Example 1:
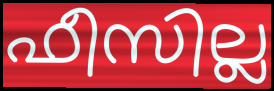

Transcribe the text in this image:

ഫീസില്ല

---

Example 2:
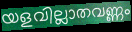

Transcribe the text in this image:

യളവില്ലാതവണ്ണം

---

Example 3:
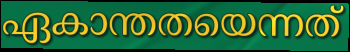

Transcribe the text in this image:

ഏകാന്തതയെന്നത്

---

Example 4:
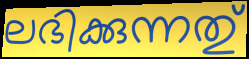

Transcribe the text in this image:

ലഭിക്കുന്നതു്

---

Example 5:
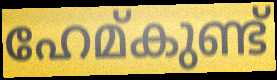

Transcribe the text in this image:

ഹേമ്കുണ്ട്